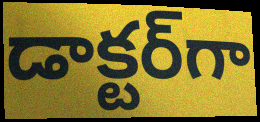
డాక్టర్‌గా